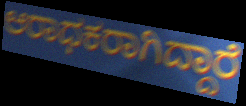
ಆರಾಧಕರಾಗಿದ್ದಾರೆ